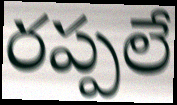
రప్పలే